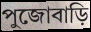
পুজোবাড়ি